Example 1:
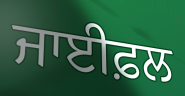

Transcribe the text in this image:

ਜਾਈਫ਼ਲ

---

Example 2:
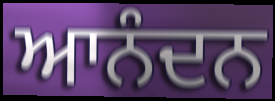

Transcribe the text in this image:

ਆਨੰਦਨ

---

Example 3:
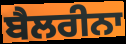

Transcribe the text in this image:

ਬੈਲਰੀਨਾ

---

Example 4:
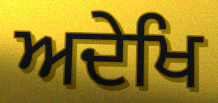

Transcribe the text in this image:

ਅਦੇਖਿ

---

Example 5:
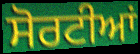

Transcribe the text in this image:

ਸੋਰਟੀਆਂ